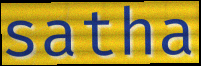
satha